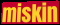
miskin